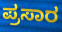
ಪ್ರಸಾರ